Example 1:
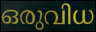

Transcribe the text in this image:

ഒരുവിധ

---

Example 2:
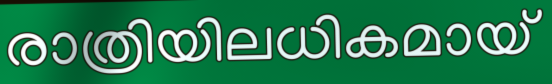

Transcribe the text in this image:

രാത്രിയിലധികമായ്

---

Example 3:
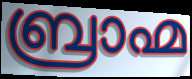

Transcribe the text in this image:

ബ്രാഹ്മ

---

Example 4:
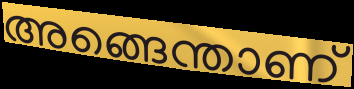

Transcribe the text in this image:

അങ്ങെന്താണ്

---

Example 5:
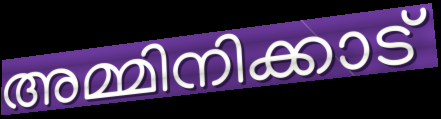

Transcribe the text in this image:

അമ്മിനിക്കാട്